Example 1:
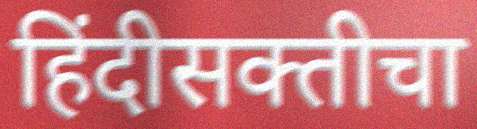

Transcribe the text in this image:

हिंदीसक्तीचा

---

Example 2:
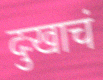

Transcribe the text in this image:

दुःखाचं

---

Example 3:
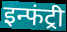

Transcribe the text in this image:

इन्फंट्री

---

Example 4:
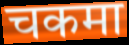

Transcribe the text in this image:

चकमा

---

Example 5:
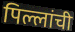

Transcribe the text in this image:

पिल्लांची